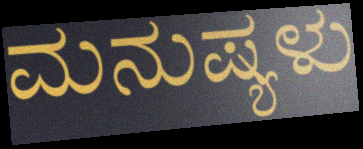
ಮನುಷ್ಯಳು